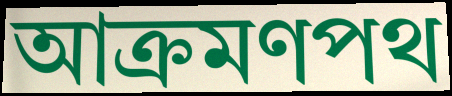
আক্রমণপথ